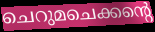
ചെറുമചെക്കന്റെ